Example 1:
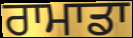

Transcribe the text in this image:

ਰਾਮਾਡਾ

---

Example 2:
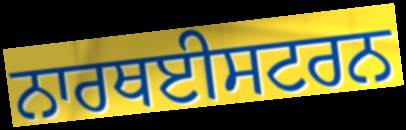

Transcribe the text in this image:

ਨਾਰਥਈਸਟਰਨ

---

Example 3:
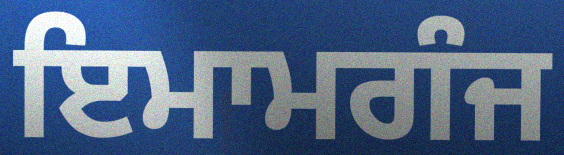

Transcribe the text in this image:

ਇਮਾਮਗੰਜ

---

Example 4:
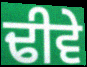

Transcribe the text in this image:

ਢੀਵੇ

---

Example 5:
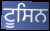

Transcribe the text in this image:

ਟੂਸਿਨ